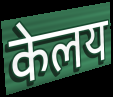
केलय